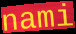
nami